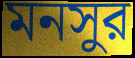
মনসুর